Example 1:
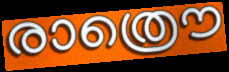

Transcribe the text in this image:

രാത്രൌ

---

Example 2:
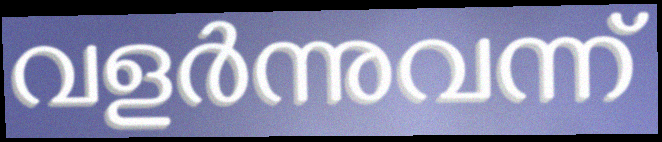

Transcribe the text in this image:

വളർന്നുവന്ന്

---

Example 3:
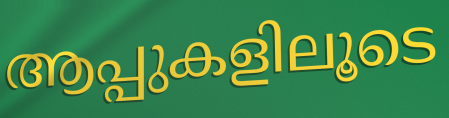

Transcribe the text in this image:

ആപ്പുകളിലൂടെ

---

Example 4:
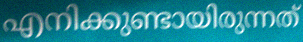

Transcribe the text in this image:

എനിക്കുണ്ടായിരുന്നത്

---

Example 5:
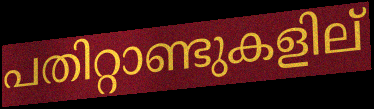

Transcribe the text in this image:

പതിറ്റാണ്ടുകളില്